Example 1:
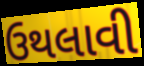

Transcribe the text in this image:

ઉથલાવી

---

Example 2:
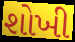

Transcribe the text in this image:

શોખી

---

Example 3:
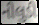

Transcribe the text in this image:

નીલુડી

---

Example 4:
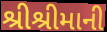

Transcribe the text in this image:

શ્રીશ્રીમાની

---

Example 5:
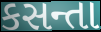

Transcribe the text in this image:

કસન્તા